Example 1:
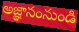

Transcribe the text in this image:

అజ్ఞానంనుండి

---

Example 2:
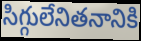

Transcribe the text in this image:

సిగ్గులేనితనానికి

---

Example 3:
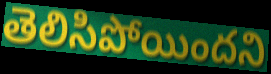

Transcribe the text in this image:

తెలిసిపోయిందని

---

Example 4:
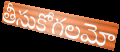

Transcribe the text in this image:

తీసుకోగలమో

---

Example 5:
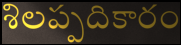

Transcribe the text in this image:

శిలప్పదికారం